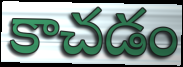
కాచడం